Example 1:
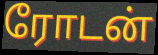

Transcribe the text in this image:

ரோடன்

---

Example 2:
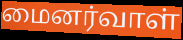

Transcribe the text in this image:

மைனர்வாள்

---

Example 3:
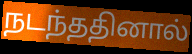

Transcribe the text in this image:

நடந்ததினால்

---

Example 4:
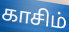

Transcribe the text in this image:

காசிம்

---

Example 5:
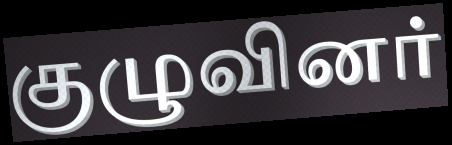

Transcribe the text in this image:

குழுவினர்